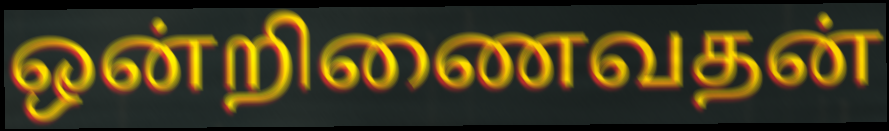
ஒன்றிணைவதன்